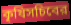
কৃষিসচিবের